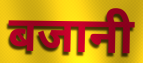
बजानी